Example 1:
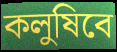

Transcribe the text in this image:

কলুষিবে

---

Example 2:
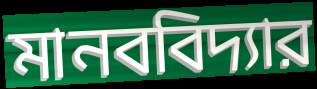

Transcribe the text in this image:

মানববিদ্যার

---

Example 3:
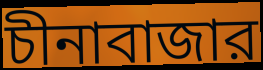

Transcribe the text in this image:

চীনাবাজার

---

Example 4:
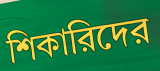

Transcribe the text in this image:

শিকারিদের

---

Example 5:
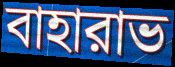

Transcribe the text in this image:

বাহারাভ